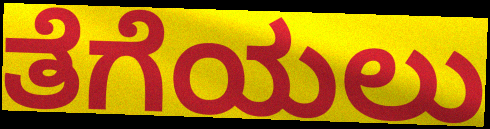
ತೆಗೆಯಲು